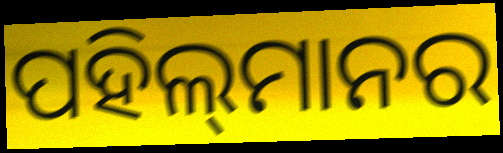
ପହିଲ୍‌ମାନର